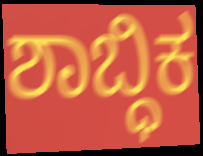
ಶಾಬ್ಧಿಕ